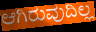
ಆಗಿರುವುದಿಲ್ಲ